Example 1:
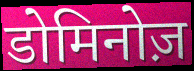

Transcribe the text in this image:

डोमिनोज़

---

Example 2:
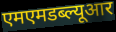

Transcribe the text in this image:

एमएमडब्ल्यूआर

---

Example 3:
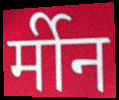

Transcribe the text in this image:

र्मीन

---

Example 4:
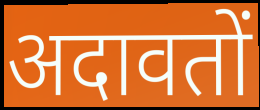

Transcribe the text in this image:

अदावतों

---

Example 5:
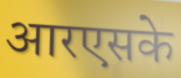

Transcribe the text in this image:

आरएसके